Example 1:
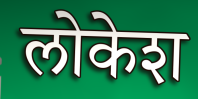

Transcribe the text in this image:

लोकेश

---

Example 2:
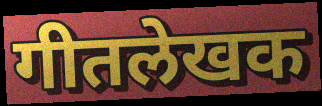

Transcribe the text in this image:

गीतलेखक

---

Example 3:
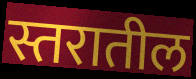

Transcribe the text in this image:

स्तरातील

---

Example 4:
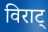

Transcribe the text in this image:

विराट्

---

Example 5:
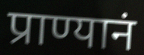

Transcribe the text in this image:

प्राण्यानं